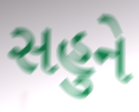
સહુને